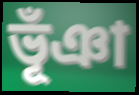
ভূঁঞা